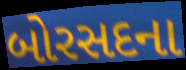
બોરસદના